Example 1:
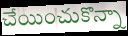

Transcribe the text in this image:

చేయించుకొన్నా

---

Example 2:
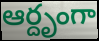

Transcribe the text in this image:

ఆర్దృంగా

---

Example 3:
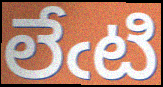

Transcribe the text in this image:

లేఁటి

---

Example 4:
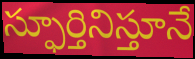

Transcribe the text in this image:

స్ఫూర్తినిస్తూనే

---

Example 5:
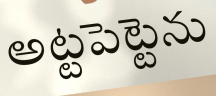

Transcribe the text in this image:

అట్టపెట్టెను